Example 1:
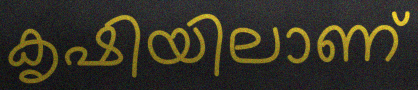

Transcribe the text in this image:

കൃഷിയിലാണ്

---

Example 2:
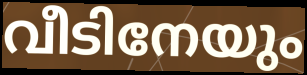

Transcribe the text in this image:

വീടിനേയും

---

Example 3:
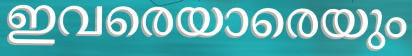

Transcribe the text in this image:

ഇവരെയാരെയും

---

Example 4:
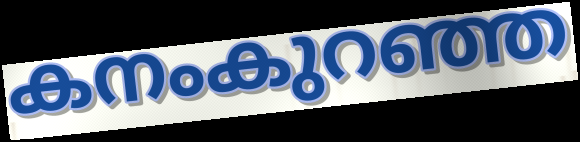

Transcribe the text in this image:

കനംകുറഞ്ഞ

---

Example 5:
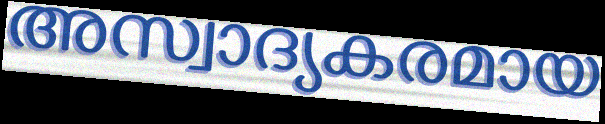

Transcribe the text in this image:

അസ്വാദ്യകരമായ